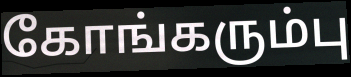
கோங்கரும்பு